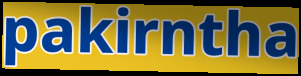
pakirntha